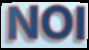
NOI